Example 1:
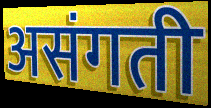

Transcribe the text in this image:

असंगती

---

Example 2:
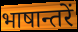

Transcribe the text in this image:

भाषान्तरें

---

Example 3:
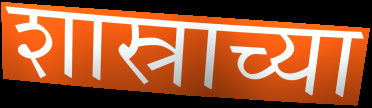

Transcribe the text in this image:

शास्राच्या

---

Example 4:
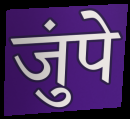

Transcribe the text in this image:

जुंपे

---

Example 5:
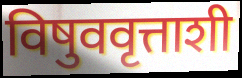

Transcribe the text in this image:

विषुववृत्ताशी